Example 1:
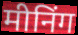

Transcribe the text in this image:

मीनिंग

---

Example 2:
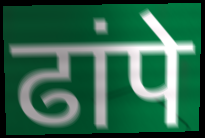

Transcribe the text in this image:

ढांपे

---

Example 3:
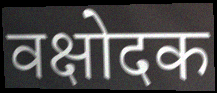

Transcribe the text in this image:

वक्षोदक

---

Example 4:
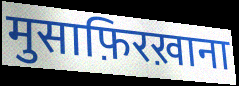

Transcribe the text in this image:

मुसाफ़िरख़ाना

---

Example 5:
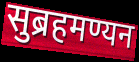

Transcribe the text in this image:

सुब्रहमण्यन